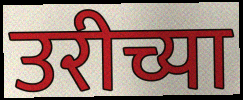
उरीच्या